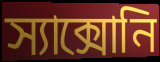
স্যাক্সোনি